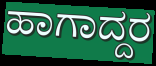
ಹಾಗಾದ್ದರ